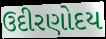
ઉદીરણોદય